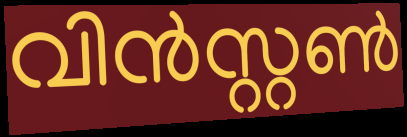
വിൻസ്റ്റൺ